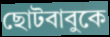
ছোটবাবুকে